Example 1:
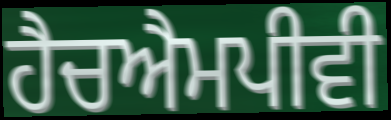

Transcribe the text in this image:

ਹੈਚਐਮਪੀਵੀ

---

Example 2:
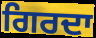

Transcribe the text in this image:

ਗਿਰਦਾ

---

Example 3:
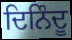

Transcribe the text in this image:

ਦਿਨਿੰਦੂ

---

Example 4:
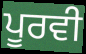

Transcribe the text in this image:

ਪੂਰਵੀ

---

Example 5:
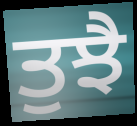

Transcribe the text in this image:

ਤੁਝੈ